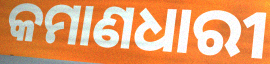
କମାଣଧାରୀ